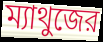
ম্যাথুজের